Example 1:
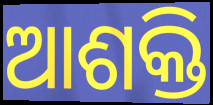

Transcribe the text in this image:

ଆଶକ୍ତି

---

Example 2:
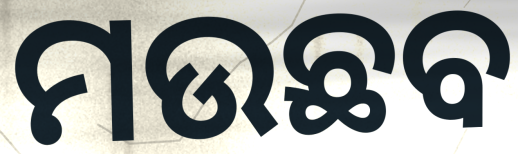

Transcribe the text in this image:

ମଉଛବ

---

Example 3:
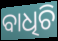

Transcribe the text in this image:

ବାଧିଚି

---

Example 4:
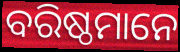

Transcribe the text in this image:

ବରିଷ୍ଠମାନେ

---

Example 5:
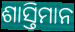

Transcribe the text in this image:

ଶାସ୍ତିମାନ